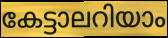
കേട്ടാലറിയാം